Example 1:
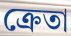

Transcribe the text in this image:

ক্ৰেতা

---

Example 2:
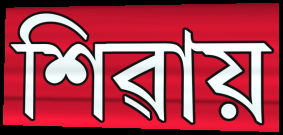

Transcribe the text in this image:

শিৱায়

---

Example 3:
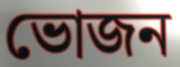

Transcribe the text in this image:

ভোজন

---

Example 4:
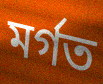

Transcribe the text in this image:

মৰ্গত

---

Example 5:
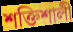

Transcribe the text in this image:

শক্তিশালী